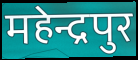
महेन्द्रपुर